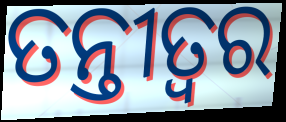
ତନ୍ତୀତ୍ୱର